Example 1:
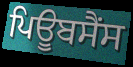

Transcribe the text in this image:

ਪਿਊਬਸੈਂਸ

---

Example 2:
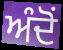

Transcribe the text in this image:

ਅੰਦੋਂ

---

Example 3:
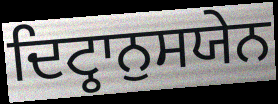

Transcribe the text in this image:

ਦਿਟ੍ਠਾਨੁਸਯੇਨ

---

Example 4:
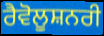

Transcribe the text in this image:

ਰੈਵੋਲੂਸ਼ਨਰੀ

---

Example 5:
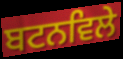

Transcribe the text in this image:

ਬਟਨਵਿਲੇ